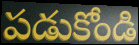
పడుకోండి